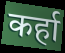
कर्हा